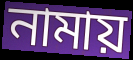
নামায়